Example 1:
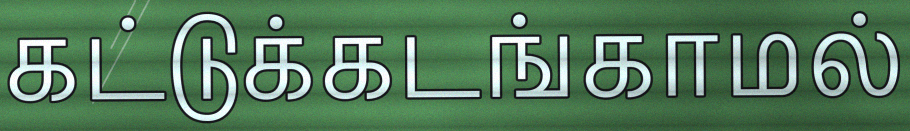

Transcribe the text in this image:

கட்டுக்கடங்காமல்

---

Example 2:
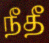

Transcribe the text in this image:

நீதீ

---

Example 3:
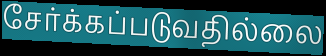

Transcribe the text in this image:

சேர்க்கப்படுவதில்லை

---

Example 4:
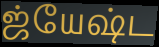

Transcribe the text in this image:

ஜ்யேஷ்ட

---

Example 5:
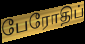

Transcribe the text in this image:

பேரோதிப்